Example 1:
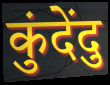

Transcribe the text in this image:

कुंदेंदु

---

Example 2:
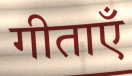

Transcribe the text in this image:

गीताएँ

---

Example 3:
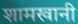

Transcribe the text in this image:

शामखानी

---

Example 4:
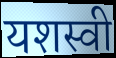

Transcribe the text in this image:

यशस्वी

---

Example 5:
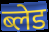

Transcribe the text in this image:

ब्लेड